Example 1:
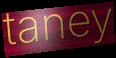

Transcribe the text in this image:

taney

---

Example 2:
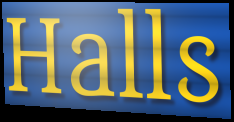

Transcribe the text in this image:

Halls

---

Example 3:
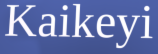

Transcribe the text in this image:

Kaikeyi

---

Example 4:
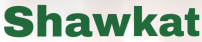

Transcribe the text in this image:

Shawkat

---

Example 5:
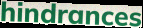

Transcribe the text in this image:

hindrances